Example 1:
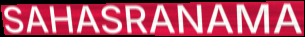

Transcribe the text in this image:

SAHASRANAMA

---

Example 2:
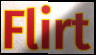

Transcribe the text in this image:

Flirt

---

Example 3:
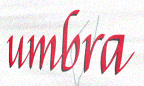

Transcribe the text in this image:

umbra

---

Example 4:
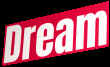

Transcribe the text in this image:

Dream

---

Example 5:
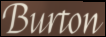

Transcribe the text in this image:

Burton